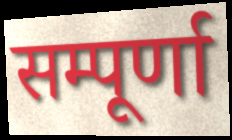
सम्पूर्णा